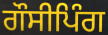
ਗੌਸੀਪਿੰਗ